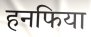
हनफिया